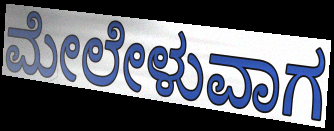
ಮೇಲೇಳುವಾಗ